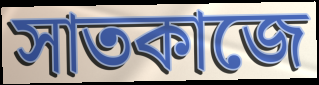
সাতকাজে